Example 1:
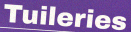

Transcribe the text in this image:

Tuileries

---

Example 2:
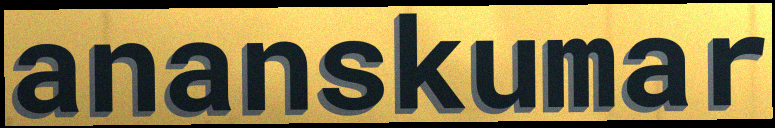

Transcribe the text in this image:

ananskumar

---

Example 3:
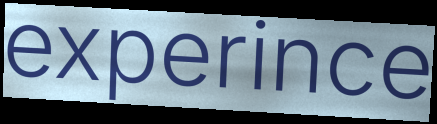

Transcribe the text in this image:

experince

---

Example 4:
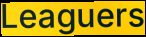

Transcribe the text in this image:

Leaguers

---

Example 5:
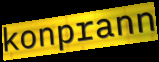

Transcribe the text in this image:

konprann